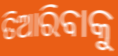
ତିଆରିବାକୁ